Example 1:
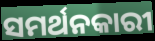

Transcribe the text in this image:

ସମର୍ଥନକାରୀ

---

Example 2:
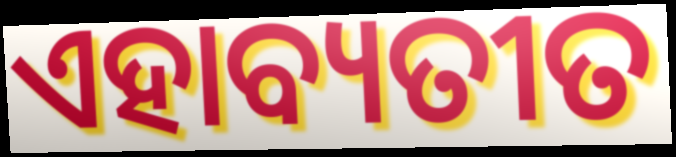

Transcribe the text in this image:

ଏହାବ୍ୟତୀତ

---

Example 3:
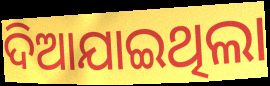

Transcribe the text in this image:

ଦିଆଯାଇଥିଲା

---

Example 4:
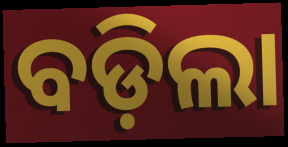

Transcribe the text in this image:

ବଡ଼ିଲା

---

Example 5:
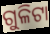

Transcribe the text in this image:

ଗୁଳିଟା